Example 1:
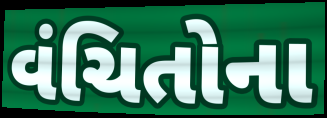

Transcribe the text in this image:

વંચિતોના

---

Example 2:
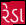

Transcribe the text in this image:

રેડા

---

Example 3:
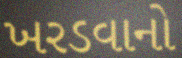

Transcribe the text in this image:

ખરડવાનો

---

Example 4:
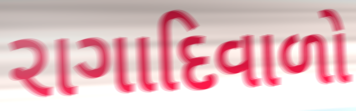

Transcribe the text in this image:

રાગાદિવાળો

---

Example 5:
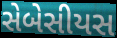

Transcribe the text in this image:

સેબેસીયસ